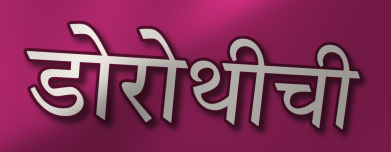
डोरोथीची